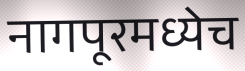
नागपूरमध्येच